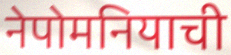
नेपोमनियाची